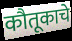
कौतूकाचे